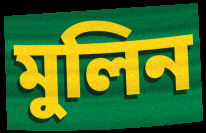
মুলিন